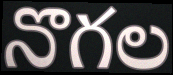
నొగల